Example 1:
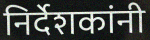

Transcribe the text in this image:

निर्देशकांनी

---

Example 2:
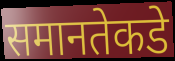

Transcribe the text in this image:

समानतेकडे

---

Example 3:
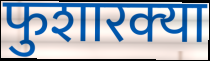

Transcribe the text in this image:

फुशारक्‍या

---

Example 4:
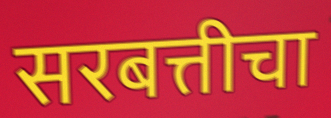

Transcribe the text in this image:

सरबत्तीचा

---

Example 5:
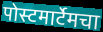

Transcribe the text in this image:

पोस्टमार्टेमचा